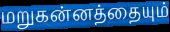
மறுகன்னத்தையும்